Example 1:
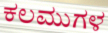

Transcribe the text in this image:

ಕಲಮುಗಳ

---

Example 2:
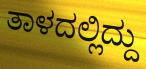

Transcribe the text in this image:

ತಾಳದಲ್ಲಿದ್ದು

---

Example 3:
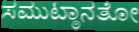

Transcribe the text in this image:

ಸಮುಟ್ಠಾನತೋ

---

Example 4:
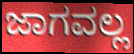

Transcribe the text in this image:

ಜಾಗವಲ್ಲ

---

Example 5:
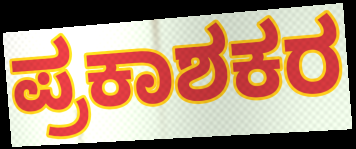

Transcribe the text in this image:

ಪ್ರಕಾಶಕರ